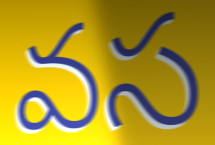
వస